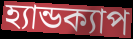
হ্যান্ডক্যাপ